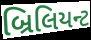
બ્રિલિયન્ટ